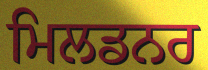
ਮਿਲਡਨਰ